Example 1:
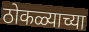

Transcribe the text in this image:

ठोकळ्याच्या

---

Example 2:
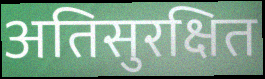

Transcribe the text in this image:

अतिसुरक्षित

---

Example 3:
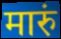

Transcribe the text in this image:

मारुं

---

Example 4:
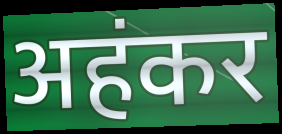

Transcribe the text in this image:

अहंकर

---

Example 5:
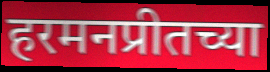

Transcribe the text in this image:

हरमनप्रीतच्या